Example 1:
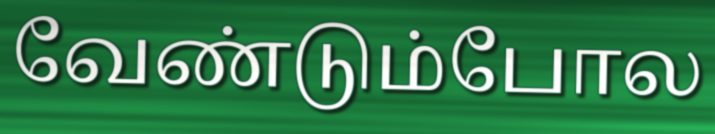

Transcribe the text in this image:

வேண்டும்போல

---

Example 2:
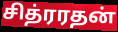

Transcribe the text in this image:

சித்ரரதன்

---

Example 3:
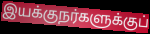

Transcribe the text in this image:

இயக்குநர்களுக்குப்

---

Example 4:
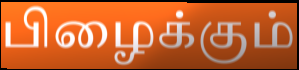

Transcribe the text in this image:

பிழைக்கும்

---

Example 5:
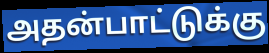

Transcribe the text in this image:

அதன்பாட்டுக்கு